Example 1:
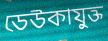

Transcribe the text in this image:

ডেউকাযুক্ত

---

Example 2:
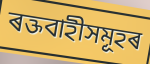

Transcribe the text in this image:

ৰক্তবাহীসমূহৰ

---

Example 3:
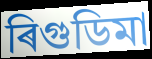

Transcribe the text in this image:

ৰিগুডিমা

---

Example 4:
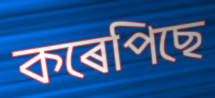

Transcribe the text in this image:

কৰেপিছে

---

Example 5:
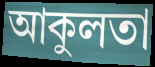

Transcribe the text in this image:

আকুলতা